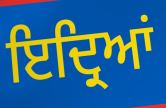
ਇਦ੍ਰਿਆਂ